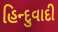
હિન્દુવાદી